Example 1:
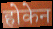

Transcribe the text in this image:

होकेन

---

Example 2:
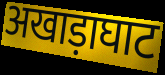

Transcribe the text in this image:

अखाड़ाघाट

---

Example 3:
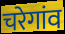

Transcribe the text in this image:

चरेगांव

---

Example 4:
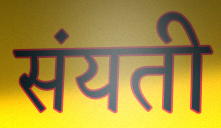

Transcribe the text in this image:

संयती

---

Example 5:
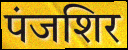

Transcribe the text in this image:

पंजशिर